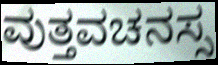
ವುತ್ತವಚನಸ್ಸ